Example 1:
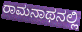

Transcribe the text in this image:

ರಾಮನಾಥನಲ್ಲಿ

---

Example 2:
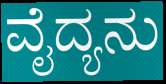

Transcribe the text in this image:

ವೈದ್ಯನು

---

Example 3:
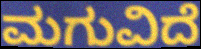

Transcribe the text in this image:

ಮಗುವಿದೆ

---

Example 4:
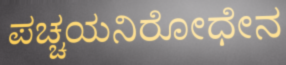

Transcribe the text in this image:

ಪಚ್ಚಯನಿರೋಧೇನ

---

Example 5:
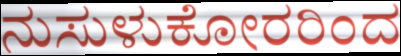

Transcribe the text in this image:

ನುಸುಳುಕೋರರಿಂದ